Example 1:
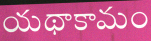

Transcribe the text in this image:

యథాకామం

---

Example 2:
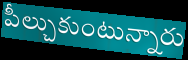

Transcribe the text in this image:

పీల్చుకుంటున్నారు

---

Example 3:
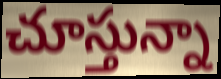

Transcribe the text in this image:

చూస్తున్నా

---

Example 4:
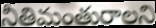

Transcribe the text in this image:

నీతిమంతురాలని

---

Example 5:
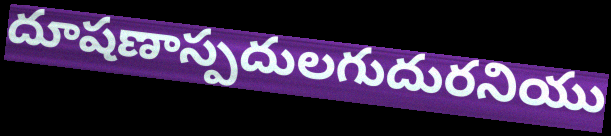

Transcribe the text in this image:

దూషణాస్పదులగుదురనియు